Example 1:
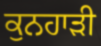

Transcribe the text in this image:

ਕੁਨਹਾੜੀ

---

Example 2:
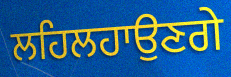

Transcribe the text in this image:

ਲਹਿਲਹਾਉਣਗੇ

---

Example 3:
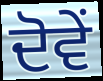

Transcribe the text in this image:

ਦੋਵੇੰ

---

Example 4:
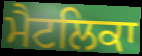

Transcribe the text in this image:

ਮੈਟਲਿਕਾ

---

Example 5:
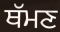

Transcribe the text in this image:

ਥੱਮਣ